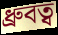
ধ্রুবত্ব